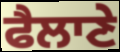
ਫੈਲਾਣੇ